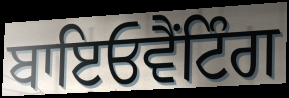
ਬਾਇਓਵੈਂਟਿੰਗ